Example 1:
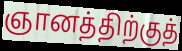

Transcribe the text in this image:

ஞானத்திற்குத்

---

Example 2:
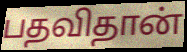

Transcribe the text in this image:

பதவிதான்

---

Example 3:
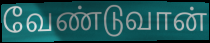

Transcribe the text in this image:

வேண்டுவான்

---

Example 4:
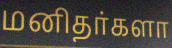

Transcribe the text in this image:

மனிதர்களா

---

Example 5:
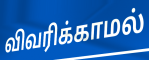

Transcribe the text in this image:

விவரிக்காமல்